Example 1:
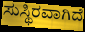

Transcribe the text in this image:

ಸುಸ್ಥಿರವಾಗಿದೆ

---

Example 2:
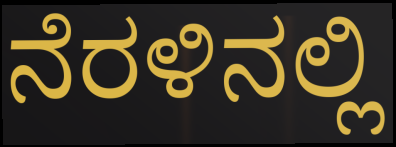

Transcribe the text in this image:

ನೆರಳಿನಲ್ಲಿ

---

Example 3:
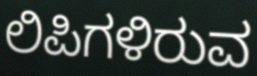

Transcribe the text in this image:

ಲಿಪಿಗಳಿರುವ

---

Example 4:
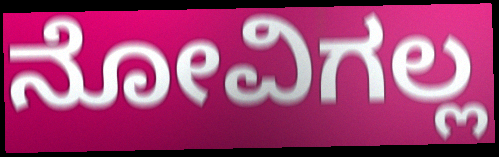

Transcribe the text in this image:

ನೋವಿಗಲ್ಲ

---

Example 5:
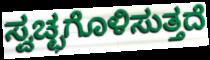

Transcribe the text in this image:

ಸ್ವಚ್ಛಗೊಳಿಸುತ್ತದೆ